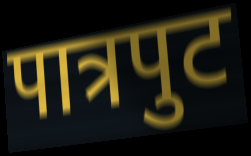
पात्रपुट